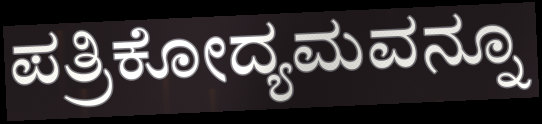
ಪತ್ರಿಕೋದ್ಯಮವನ್ನೂ